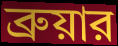
ব্রুয়ার